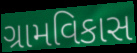
ગ્રામવિકાસ